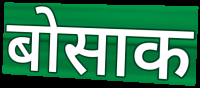
बोसाक